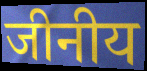
जीनीय